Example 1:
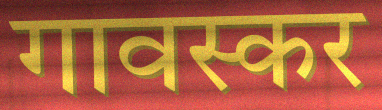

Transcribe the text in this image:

गावस्कर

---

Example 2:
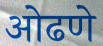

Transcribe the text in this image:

ओढणे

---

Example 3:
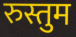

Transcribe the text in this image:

रुस्तुम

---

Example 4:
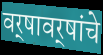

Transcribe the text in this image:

वर्षावर्षांचे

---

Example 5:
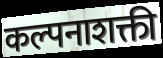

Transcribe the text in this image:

कल्पनाशक्ती